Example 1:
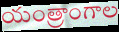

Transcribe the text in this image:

యంత్రాంగాల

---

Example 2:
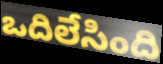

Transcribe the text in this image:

ఒదిలేసింది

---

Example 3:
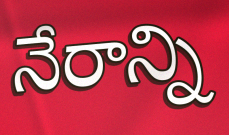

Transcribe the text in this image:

నేరాన్ని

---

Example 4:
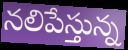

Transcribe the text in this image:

నలిపేస్తున్న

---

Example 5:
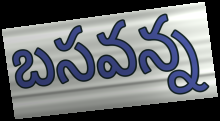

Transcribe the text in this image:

బసవన్న